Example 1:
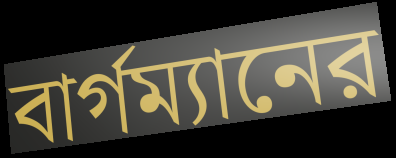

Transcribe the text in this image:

বার্গম্যানের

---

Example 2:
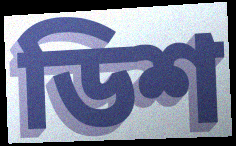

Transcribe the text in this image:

ডিশ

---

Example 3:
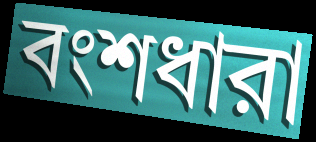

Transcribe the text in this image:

বংশধারা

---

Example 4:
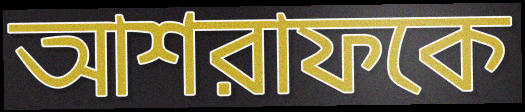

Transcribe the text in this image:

আশরাফকে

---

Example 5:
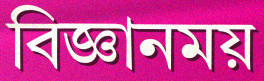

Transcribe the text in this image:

বিজ্ঞানময়